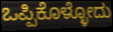
ಒಪ್ಪಿಕೊಳ್ಳೋದು